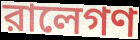
রালেগণ